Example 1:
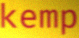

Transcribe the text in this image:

kemp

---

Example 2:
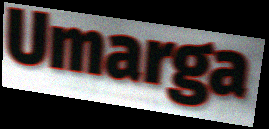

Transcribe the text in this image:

Umarga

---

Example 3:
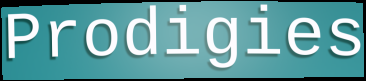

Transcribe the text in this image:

Prodigies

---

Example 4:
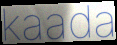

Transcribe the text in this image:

kaada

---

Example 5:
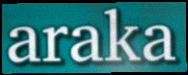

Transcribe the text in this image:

araka